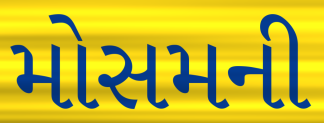
મોસમની